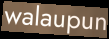
walaupun